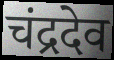
चंद्रदेव